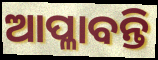
ଆପ୍ଳାବନ୍ତି